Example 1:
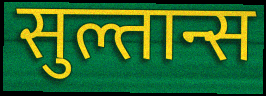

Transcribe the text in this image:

सुल्तान्स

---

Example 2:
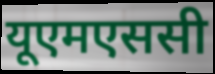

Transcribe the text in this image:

यूएमएससी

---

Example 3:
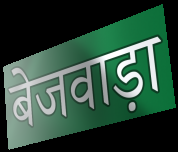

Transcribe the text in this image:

बेजवाड़ा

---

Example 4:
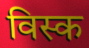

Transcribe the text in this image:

विस्क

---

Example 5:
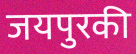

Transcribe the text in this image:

जयपुरकी